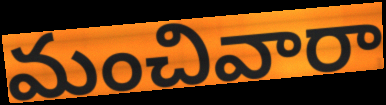
మంచివారా